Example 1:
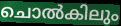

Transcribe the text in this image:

ചൊൽകിലും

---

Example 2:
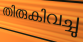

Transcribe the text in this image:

തിരുകിവച്ചു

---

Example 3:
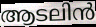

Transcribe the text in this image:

ആടലിൻ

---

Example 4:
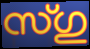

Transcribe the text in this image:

സ്ഗു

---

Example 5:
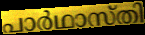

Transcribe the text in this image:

പാർഥാസ്തി